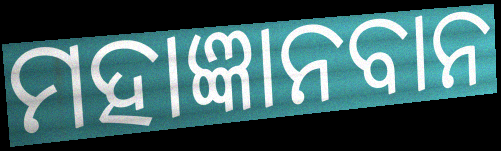
ମହାଜ୍ଞାନବାନ